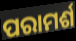
ପରାମର୍ଶ